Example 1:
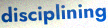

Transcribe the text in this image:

disciplining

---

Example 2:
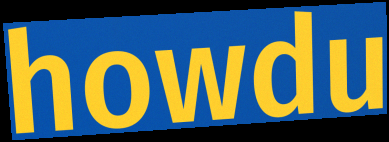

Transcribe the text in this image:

howdu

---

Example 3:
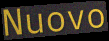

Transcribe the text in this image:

Nuovo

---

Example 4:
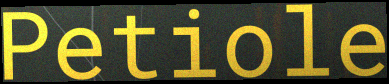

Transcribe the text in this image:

Petiole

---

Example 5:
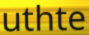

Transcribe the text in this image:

uthte